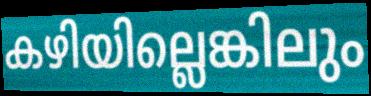
കഴിയില്ലെങ്കിലും